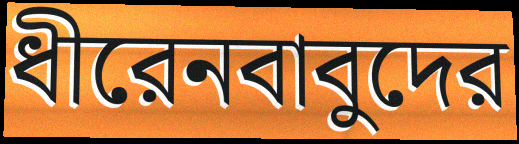
ধীরেনবাবুদের